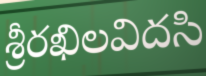
శ్రీరఖిలవిదసి